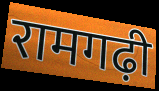
रामगढ़ी